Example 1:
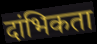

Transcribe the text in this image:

दांभिकता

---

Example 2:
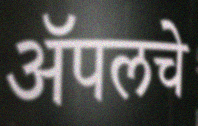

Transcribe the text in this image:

ॲपलचे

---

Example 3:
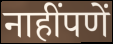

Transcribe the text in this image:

नाहींपणें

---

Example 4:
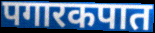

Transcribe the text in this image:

पगारकपात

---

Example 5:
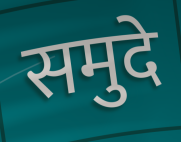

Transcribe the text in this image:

समुदे